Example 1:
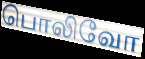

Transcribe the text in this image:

பொலிவோ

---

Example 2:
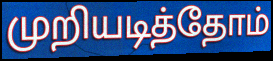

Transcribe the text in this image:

முறியடித்தோம்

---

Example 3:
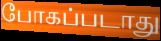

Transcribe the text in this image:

போகப்படாது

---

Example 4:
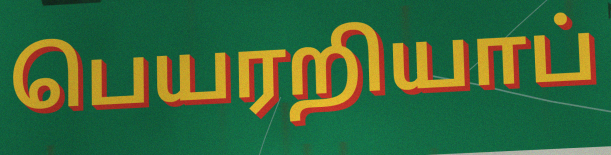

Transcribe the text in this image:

பெயரறியாப்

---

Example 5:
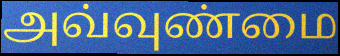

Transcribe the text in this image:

அவ்வுண்மை